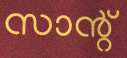
സാന്റ്